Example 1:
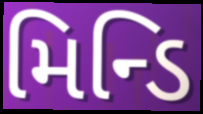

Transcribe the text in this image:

મિન્ડિ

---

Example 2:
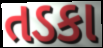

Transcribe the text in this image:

તડકા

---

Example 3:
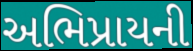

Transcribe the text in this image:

અભિપ્રાયની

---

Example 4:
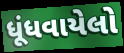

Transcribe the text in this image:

ધૂંધવાયેલો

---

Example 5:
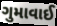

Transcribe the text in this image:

ગુમાવાઈ